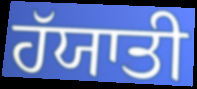
ਹੱਯਾਤੀ